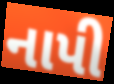
નાપી